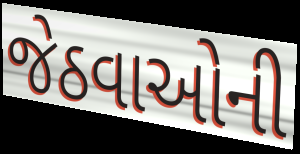
જેઠવાઓની